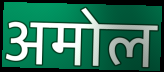
अमोल